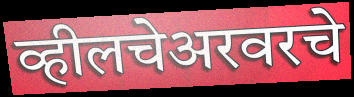
व्हीलचेअरवरचे